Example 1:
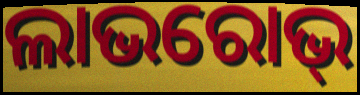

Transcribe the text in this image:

ଲାଭରୋଭ୍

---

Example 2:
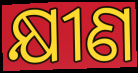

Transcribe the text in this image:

କ୍ଷୀଣ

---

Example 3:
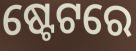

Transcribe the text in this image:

ଷ୍ଟେଟରେ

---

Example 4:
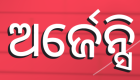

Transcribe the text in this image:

ଅର୍ଜେନ୍ସି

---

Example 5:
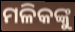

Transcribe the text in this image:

ମଳିକଙ୍କୁ